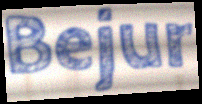
Bejur